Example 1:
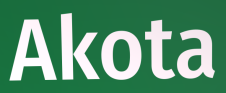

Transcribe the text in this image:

Akota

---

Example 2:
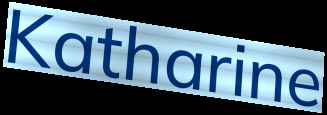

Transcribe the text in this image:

Katharine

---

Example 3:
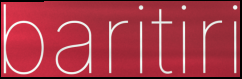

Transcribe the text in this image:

baritiri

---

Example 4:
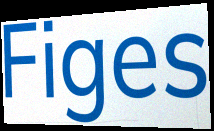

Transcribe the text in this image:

Figes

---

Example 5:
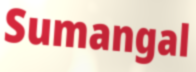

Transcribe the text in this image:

Sumangal